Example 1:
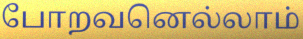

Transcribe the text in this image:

போறவனெல்லாம்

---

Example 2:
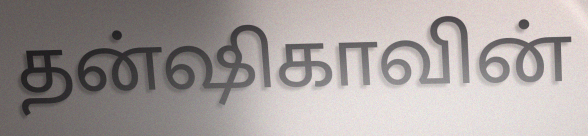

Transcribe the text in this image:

தன்ஷிகாவின்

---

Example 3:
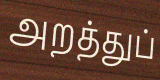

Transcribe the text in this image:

அறத்துப்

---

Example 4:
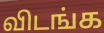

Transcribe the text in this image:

விடங்க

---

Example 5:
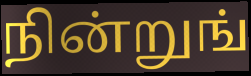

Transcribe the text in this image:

நின்றுங்